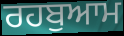
ਰਹਬੁਆਮ